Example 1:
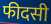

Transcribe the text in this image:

फीदसी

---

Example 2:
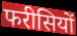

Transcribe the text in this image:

फरीसियों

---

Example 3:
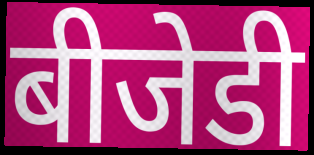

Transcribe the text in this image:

बीजेडी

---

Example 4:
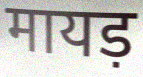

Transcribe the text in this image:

मायड़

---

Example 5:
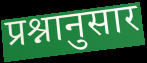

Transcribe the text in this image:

प्रश्नानुसार